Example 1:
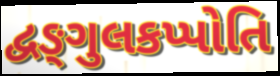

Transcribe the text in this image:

દ્વઙ્ગુલકપ્પોતિ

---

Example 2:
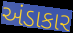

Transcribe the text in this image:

અંડાકાર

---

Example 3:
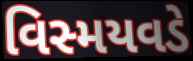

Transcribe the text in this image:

વિસ્મયવડે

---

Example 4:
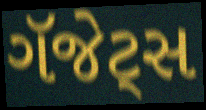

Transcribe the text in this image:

ગૅજેટ્સ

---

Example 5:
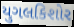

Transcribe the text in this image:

યુગલકિશોર